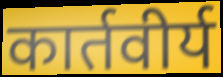
कार्तवीर्य